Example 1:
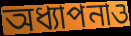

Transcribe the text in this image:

অধ্যাপনাও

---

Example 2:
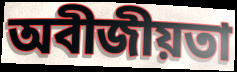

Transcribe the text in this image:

অবীজীয়তা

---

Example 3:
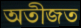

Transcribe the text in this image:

অতীজত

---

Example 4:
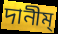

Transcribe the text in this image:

দানীম্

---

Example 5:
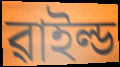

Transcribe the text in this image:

ৱাইল্ড